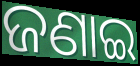
ଜଣାଇ